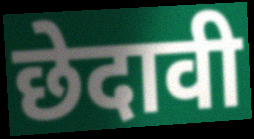
छेदावी